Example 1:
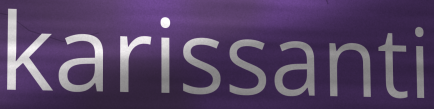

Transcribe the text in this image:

karissanti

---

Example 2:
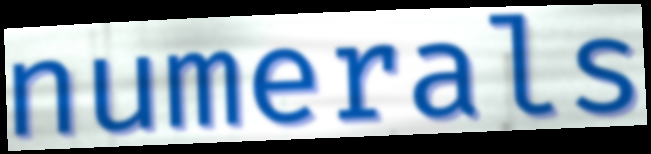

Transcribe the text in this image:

numerals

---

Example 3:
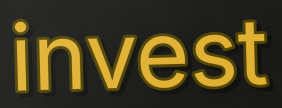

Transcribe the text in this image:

invest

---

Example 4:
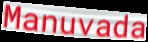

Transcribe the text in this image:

Manuvada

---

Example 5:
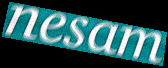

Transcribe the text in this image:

nesam